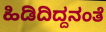
ಹಿಡಿದಿದ್ದನಂತೆ